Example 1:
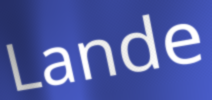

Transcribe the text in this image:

Lande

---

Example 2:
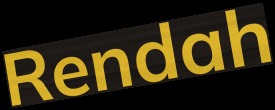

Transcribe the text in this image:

Rendah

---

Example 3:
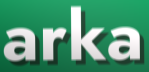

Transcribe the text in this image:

arka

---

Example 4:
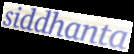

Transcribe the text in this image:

siddhanta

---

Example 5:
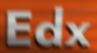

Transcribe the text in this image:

Edx